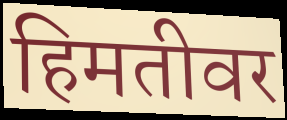
हिमतीवर